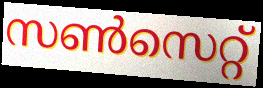
സൺസെറ്റ്